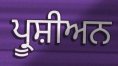
ਪ੍ਰੂਸ਼ੀਅਨ